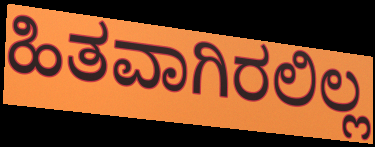
ಹಿತವಾಗಿರಲಿಲ್ಲ